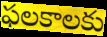
ఫలకాలకు